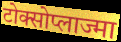
टोक्सोप्लाज्मा